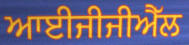
ਆਈਜੀਜੀਐੱਲ